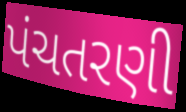
પંચતરણી